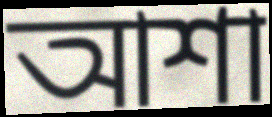
আশা